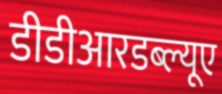
डीडीआरडब्ल्यूए